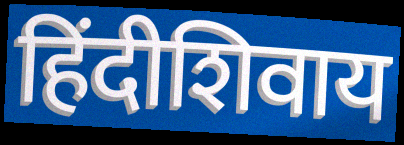
हिंदीशिवाय